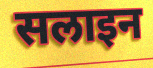
सलाइन